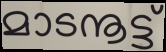
മാടനൂട്ട്